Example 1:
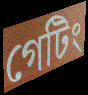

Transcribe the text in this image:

গেটিং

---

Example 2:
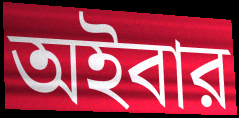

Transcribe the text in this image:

অইবার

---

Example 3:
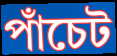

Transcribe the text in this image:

পাঁচেট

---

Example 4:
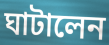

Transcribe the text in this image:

ঘাটালেন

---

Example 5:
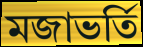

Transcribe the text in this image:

মজাভর্তি